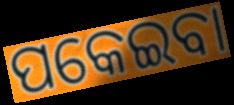
ପକେଇବା